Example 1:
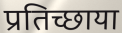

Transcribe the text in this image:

प्रतिच्छाया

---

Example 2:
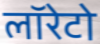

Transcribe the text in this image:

लॉरेटो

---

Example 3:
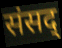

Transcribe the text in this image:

संसद्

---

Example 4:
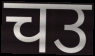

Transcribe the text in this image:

चउ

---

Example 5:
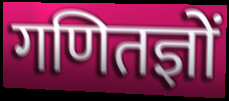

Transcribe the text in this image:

गणितज्ञों